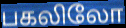
பகலிலோ